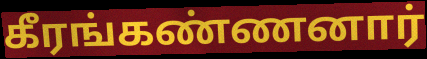
கீரங்கண்ணனார்